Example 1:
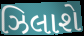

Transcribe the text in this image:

ઝિલાશે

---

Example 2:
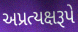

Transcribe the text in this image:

અપ્રત્યક્ષરૂપે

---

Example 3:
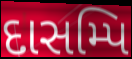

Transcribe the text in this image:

દાસમ્પિ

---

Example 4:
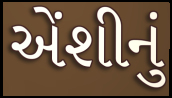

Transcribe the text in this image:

એંશીનું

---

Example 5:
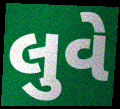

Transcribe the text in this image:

લુવે